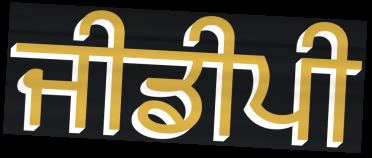
ਜੀਡੀਪੀ